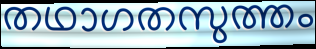
തഥാഗതസുത്തം